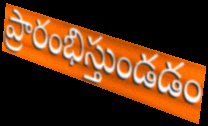
ప్రారంభిస్తుండడం